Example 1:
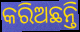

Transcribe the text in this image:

କରିଅଛନ୍ତି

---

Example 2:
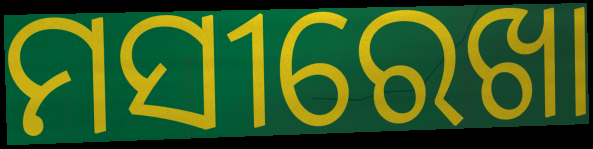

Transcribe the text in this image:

ମସୀରେଖା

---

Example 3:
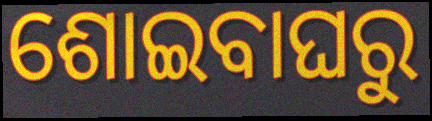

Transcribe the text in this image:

ଶୋଇବାଘରୁ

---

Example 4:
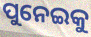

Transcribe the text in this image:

ପୁନେଇକୁ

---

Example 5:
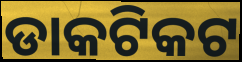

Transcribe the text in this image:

ଡାକଟିକଟ